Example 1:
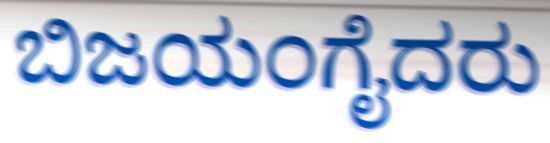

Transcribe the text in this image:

ಬಿಜಯಂಗೈದರು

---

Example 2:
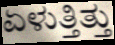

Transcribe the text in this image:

ಏಳುತ್ತಿತ್ತು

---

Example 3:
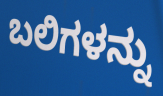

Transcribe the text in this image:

ಬಲಿಗಳನ್ನು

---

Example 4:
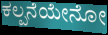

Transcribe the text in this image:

ಕಲ್ಪನೆಯೇನೋ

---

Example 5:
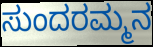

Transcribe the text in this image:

ಸುಂದರಮ್ಮನ